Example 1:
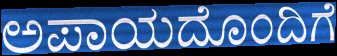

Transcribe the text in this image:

ಅಪಾಯದೊಂದಿಗೆ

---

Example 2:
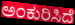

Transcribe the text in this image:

ಅಂಕುರಿಸಿದೆ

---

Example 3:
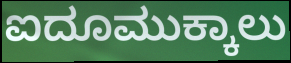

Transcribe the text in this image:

ಐದೂಮುಕ್ಕಾಲು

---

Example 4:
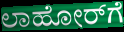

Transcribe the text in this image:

ಲಾಹೋರ್‌ಗೆ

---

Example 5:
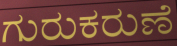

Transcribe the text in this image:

ಗುರುಕರುಣೆ